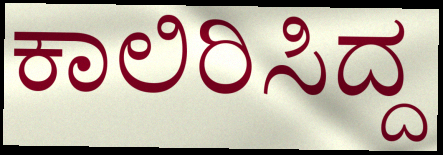
ಕಾಲಿರಿಸಿದ್ದ